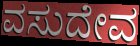
ವಸುದೇವ